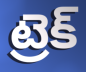
ట్రెక్